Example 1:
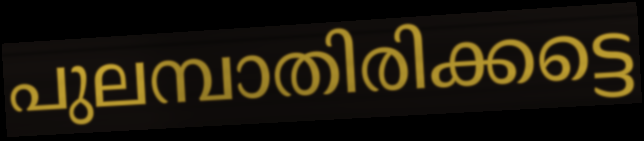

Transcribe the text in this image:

പുലമ്പാതിരിക്കട്ടെ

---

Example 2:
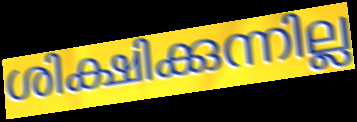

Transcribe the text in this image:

ശിക്ഷിക്കുന്നില്ല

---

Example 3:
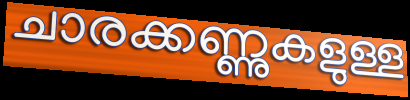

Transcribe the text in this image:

ചാരക്കണ്ണുകളുള്ള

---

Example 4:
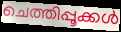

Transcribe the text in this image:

ചെത്തിപ്പൂക്കൾ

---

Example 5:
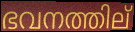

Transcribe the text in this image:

ഭവനത്തില്